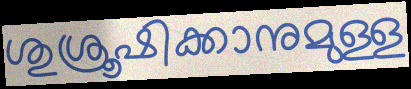
ശുശ്രൂഷിക്കാനുമുള്ള